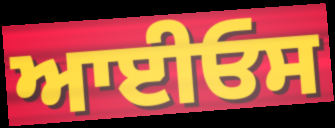
ਆਈਓਸ